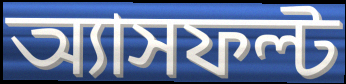
অ্যাসফল্ট